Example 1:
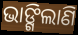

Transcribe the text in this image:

ଭାଙ୍ଗିଲାଣି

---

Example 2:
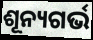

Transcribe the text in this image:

ଶୂନ୍ୟଗର୍ଭ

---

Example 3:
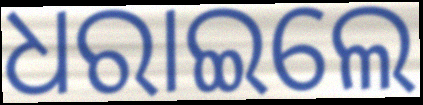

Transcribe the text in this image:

ଧରାଇଲେ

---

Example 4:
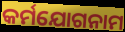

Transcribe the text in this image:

କର୍ମଯୋଗନାମ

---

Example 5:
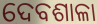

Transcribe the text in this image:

ଦେବଶାଳା